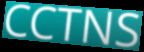
CCTNS